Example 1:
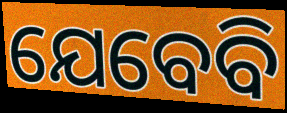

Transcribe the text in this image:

ଯେବେବି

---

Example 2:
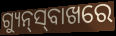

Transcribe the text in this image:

ଗ୍ୟୁନ୍‍ସ୍‍ବାଖରେ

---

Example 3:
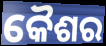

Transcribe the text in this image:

କୈଶର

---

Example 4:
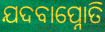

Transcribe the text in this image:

ଯଦବାପ୍ନୋତି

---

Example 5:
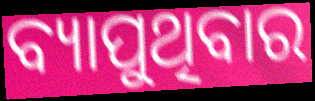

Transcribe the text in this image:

ବ୍ୟାପୁଥିବାର